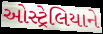
ઓસ્ટ્રેલિયાને